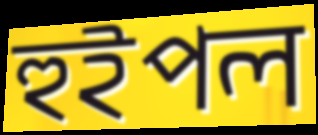
হুইপল